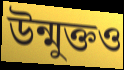
উন্মুক্তও